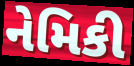
નેમિકી